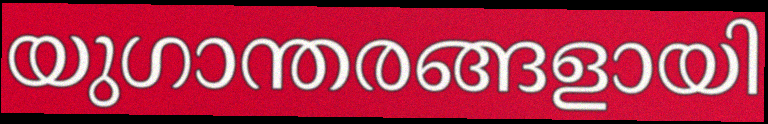
യുഗാന്തരങ്ങളായി